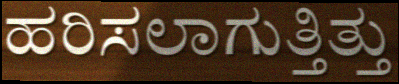
ಹರಿಸಲಾಗುತ್ತಿತ್ತು